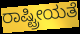
ರಾಷ್ಟ್ರೀಯತೆ